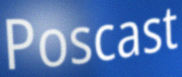
Poscast